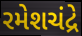
રમેશચંદ્રે